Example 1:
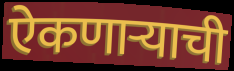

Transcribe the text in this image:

ऐकणार्‍याची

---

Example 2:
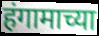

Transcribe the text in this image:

हंगामाच्या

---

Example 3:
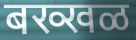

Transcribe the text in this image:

बख्खळ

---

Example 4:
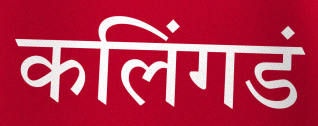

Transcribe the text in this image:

कलिंगडं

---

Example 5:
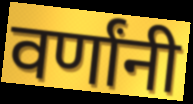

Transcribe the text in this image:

वर्णांनी